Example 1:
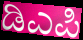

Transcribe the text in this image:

ಡಿಎಪಿ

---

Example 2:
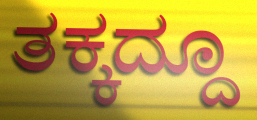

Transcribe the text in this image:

ತಕ್ಕದ್ದೂ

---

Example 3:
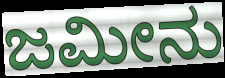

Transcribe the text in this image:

ಜಮೀನು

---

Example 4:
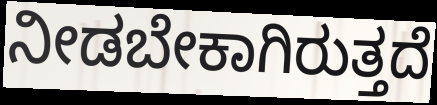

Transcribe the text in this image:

ನೀಡಬೇಕಾಗಿರುತ್ತದೆ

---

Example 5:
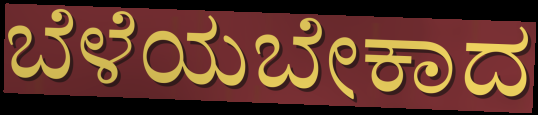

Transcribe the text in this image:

ಬೆಳೆಯಬೇಕಾದ